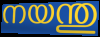
നയന്തു